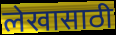
लेखासाठी